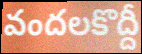
వందలకొద్దీ